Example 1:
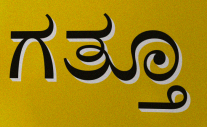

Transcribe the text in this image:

ಗತ್ತೂ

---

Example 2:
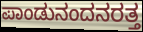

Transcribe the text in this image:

ಪಾಂಡುನಂದನರತ್ತ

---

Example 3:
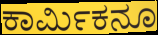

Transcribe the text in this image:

ಕಾರ್ಮಿಕನೂ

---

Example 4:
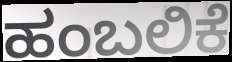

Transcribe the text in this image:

ಹಂಬಲಿಕೆ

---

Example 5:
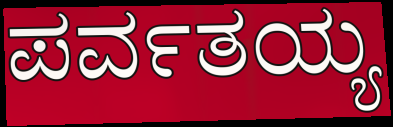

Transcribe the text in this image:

ಪರ್ವತಯ್ಯ